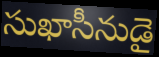
సుఖాసీనుడై